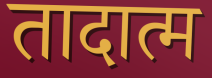
तादात्म